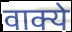
वाक्ये